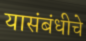
यासंबंधीचे